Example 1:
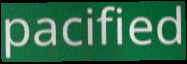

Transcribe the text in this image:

pacified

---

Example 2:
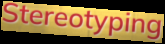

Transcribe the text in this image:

Stereotyping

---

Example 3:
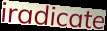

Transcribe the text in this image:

iradicate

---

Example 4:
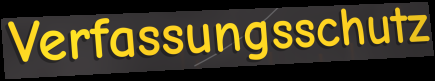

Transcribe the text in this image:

Verfassungsschutz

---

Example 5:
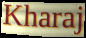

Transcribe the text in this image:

Kharaj